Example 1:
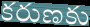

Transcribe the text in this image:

కరుణకు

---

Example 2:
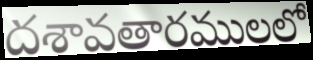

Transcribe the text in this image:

దశావతారములలో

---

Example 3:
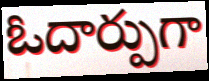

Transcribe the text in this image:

ఓదార్పుగా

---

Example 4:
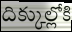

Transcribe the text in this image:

దిక్కుల్లోకి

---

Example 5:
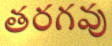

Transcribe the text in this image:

తరగవు